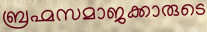
ബ്രഹ്മസമാജക്കാരുടെ